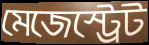
মেজেস্ট্রেট